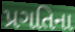
પ્રગતિના